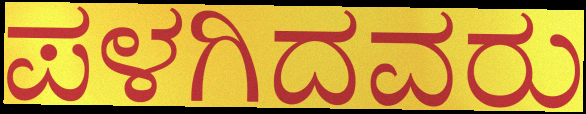
ಪಳಗಿದವರು